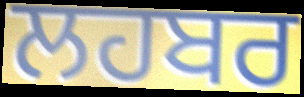
ਲਹਬਰ